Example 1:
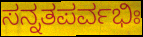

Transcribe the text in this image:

ಸನ್ನತಪರ್ವಭಿಃ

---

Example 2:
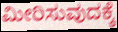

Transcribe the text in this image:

ಮೀರಿಸುವುದಕ್ಕೆ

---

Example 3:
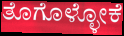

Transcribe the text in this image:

ತೊಗೊಳ್ಳೋಕೆ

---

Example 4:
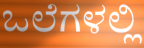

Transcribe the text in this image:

ಒಲೆಗಳಲ್ಲಿ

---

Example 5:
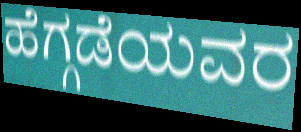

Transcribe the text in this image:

ಹೆಗ್ಗಡೆಯವರ